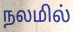
நலமில்